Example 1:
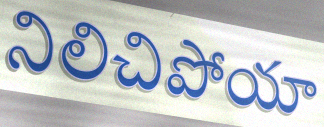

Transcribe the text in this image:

నిలిచిపోయా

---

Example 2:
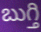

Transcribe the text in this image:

బుగ్తి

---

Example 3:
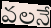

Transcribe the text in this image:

వలనే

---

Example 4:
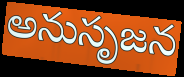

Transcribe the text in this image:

అనుసృజన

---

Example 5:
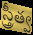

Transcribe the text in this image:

స్త్రీత్వ